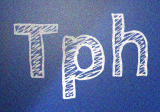
Tph